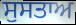
ਸੁਸਤਾਅ